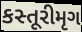
કસ્તૂરીમૃગ